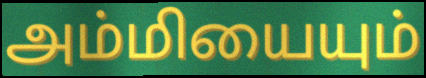
அம்மியையும்